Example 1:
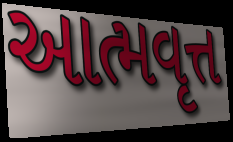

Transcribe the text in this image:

આત્મવૃત્ત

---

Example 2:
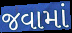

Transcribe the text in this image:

જવામાં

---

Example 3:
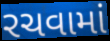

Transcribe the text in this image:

રચવામાં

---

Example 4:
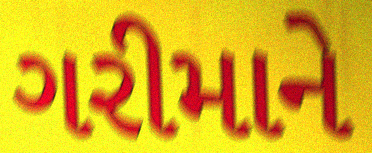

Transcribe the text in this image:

ગરીમાને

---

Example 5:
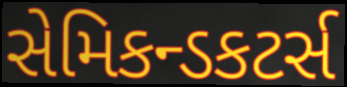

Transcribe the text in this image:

સેમિકન્ડકટર્સ